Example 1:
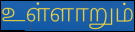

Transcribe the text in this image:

உள்ளாறும்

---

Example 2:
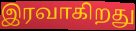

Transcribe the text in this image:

இரவாகிறது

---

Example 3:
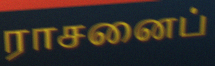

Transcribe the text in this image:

ராசனைப்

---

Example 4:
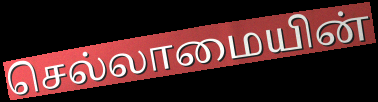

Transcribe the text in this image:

செல்லாமையின்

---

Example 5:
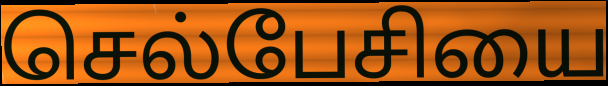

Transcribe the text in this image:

செல்பேசியை